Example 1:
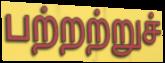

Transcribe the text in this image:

பற்றற்றுச்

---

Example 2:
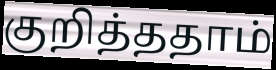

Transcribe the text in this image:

குறித்ததாம்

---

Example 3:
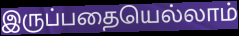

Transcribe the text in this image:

இருப்பதையெல்லாம்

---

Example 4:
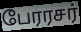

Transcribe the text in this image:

பேரரசர்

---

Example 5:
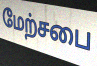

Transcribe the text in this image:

மேற்சபை